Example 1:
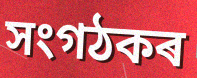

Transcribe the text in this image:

সংগঠকৰ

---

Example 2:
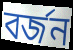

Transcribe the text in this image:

বৰ্জন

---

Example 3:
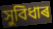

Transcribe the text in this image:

সুবিধাৰ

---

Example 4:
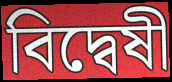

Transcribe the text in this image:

বিদ্বেষী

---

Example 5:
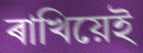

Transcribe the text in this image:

ৰাখিয়েই